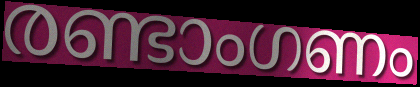
രണ്ടാംഗണം